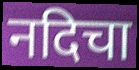
नदिचा